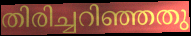
തിരിച്ചറിഞ്ഞതു